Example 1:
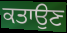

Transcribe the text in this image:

ਕਤਾਉਣ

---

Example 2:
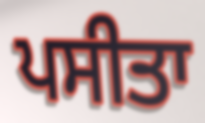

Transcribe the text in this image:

ਪਸੀਤਾ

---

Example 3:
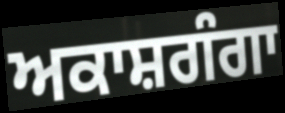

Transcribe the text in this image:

ਅਕਾਸ਼ਗੰਗਾ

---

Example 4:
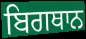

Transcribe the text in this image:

ਬਿਗਥਾਨ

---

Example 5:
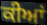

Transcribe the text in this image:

ਕੀਆਂ